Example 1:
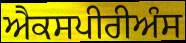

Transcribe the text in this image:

ਐਕਸਪੀਰੀਅੰਸ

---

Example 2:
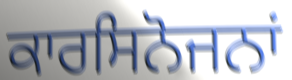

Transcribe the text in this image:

ਕਾਰਸਿਨੋਜਨਾਂ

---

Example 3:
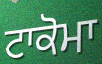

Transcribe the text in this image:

ਟਾਕੋਮਾ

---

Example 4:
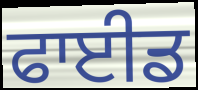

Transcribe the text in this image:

ਫਾਈਡ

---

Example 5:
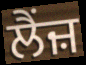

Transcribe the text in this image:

ਲੈਂਜ਼